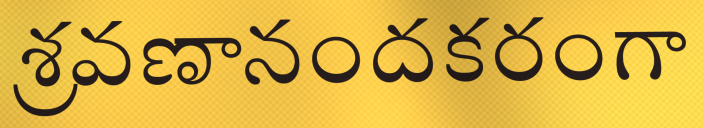
శ్రవణానందకరంగా